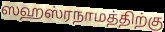
ஸஹஸ்ரநாமத்திற்கு